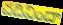
చదివిందా